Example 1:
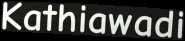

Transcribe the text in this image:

Kathiawadi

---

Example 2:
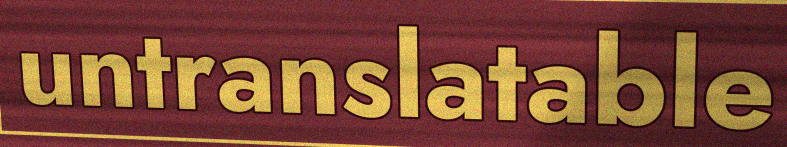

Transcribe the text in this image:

untranslatable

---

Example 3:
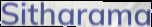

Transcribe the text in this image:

Sitharama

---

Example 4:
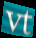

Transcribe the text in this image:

vt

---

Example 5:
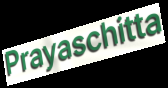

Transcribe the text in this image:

Prayaschitta